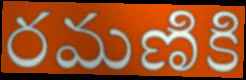
రమణికి